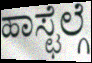
ಹಾಸ್ಟೆಲ್ಗೆ